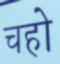
चहो